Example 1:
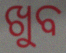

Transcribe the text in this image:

ଖୁବ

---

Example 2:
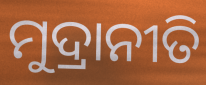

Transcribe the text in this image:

ମୁଦ୍ରାନୀତି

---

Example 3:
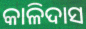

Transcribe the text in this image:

କାଳିଦାସ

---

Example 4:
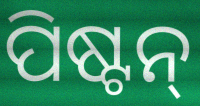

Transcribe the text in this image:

ପିଷ୍ଟନ୍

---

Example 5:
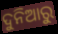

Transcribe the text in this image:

ଦୁନିଆରୁ